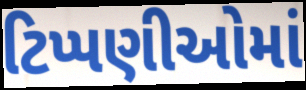
ટિપ્પણીઓમાં